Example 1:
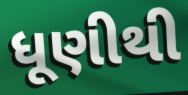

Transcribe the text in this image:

ધૂણીથી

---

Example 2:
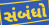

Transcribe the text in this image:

સંબંધો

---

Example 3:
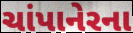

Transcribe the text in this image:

ચાંપાનેરના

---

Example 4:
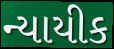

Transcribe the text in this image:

ન્યાયીક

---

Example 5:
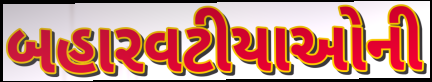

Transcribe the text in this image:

બહારવટીયાઓની